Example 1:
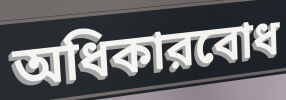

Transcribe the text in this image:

অধিকারবোধ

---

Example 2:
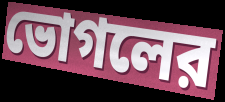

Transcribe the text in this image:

ভোগলের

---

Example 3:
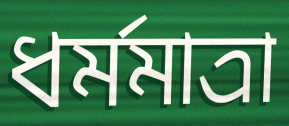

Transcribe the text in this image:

ধর্মমাত্রা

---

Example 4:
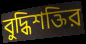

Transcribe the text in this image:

বুদ্ধিশক্তির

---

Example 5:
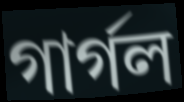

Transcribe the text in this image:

গার্গল